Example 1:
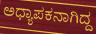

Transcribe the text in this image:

ಅಧ್ಯಾಪಕನಾಗಿದ್ದ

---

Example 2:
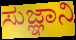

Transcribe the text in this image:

ಸುಜ್ಞಾನಿ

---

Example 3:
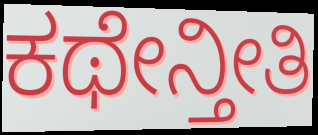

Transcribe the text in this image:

ಕಥೇನ್ತೀತಿ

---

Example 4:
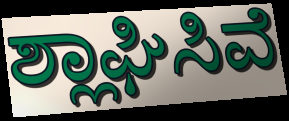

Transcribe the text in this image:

ಶ್ಲಾಘಿಸಿವೆ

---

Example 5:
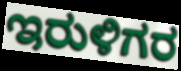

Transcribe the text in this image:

ಇರುಳಿಗರ